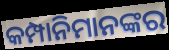
କମ୍ପାନିମାନଙ୍କର